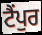
ਟੈਂਪੁਰ